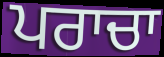
ਪਰਾਚਾ